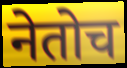
नेतोच